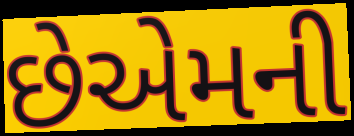
છેએમની